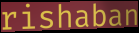
rishaban